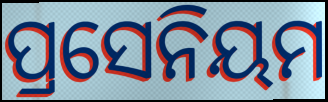
ପ୍ରସେନିୟମ